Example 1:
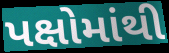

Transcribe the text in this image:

પક્ષોમાંથી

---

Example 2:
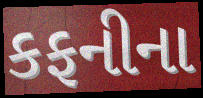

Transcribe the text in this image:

કફનીના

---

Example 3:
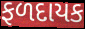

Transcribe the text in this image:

ફળદાયક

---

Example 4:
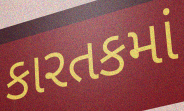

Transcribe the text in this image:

કારતકમાં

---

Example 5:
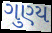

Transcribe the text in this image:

ગુણ્ય